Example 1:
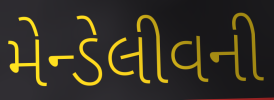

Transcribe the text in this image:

મેન્ડેલીવની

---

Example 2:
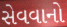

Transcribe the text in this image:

સેવવાનો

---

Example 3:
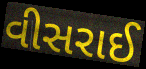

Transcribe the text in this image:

વીસરાઈ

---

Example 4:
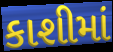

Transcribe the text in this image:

કાશીમાં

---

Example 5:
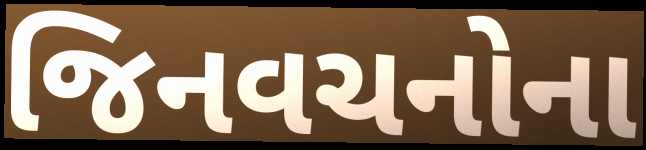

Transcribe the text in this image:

જિનવચનોના